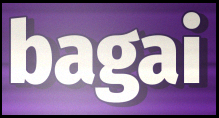
bagai